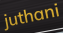
juthani